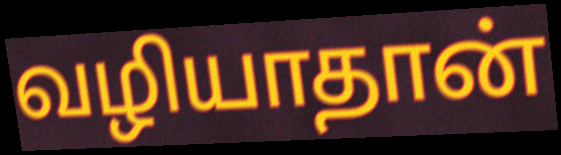
வழியாதான்